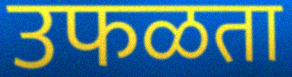
उफळता